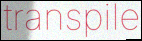
transpile